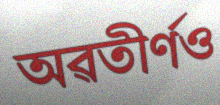
অৱতীৰ্ণও